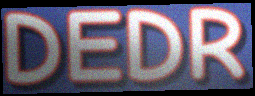
DEDR